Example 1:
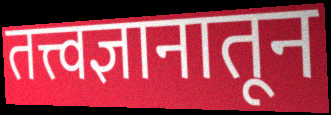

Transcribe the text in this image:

तत्त्वज्ञानातून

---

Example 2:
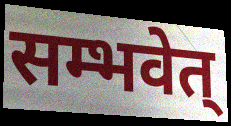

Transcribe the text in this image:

सम्भवेत्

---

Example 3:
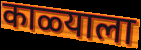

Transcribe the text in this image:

काळ्याला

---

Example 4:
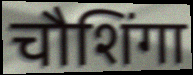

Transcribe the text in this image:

चौशिंगा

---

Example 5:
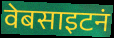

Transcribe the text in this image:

वेबसाइटनं